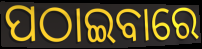
ପଠାଇବାରେ